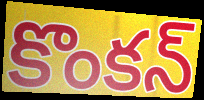
కొంకన్